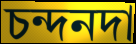
চন্দনদা